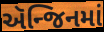
ઍન્જિનમાં